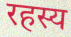
रहस्य